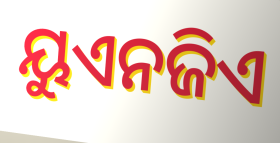
ୟୁଏନଜିଏ